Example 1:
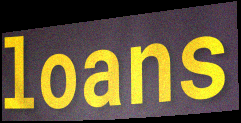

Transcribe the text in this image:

loans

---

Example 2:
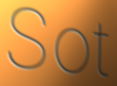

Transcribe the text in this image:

Sot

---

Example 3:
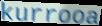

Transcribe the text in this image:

kurrooa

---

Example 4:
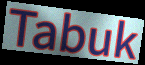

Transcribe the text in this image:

Tabuk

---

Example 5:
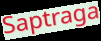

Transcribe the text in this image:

Saptraga